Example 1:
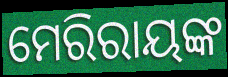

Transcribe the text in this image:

ମେରିରାୟଙ୍କ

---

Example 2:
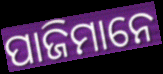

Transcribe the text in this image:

ପାଜିମାନେ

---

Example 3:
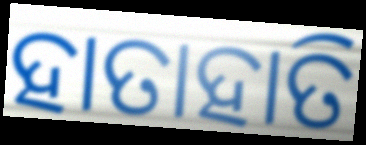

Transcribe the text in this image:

ହାତାହାତି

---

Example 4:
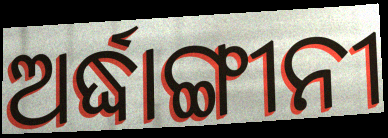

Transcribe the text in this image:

ଅର୍ଦ୍ଧାଙ୍ଗୀନୀ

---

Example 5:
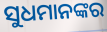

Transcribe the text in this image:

ସୁଧମାନଙ୍କର